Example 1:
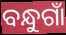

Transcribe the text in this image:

ବନ୍ଧୁଗାଁ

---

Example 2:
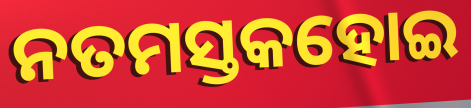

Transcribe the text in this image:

ନତମସ୍ତକହୋଇ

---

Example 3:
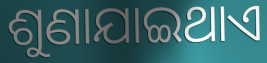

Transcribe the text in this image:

ଶୁଣାଯାଇଥାଏ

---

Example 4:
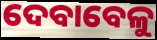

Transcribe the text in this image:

ଦେବାବେଳୁ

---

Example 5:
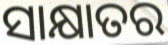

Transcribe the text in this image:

ସାକ୍ଷାତର